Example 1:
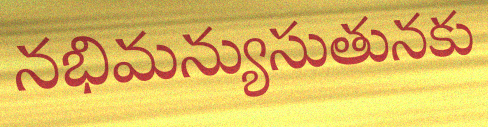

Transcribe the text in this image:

నభిమన్యుసుతునకు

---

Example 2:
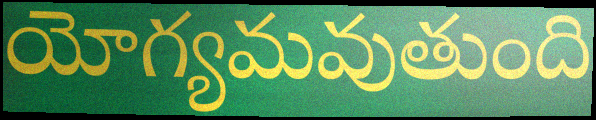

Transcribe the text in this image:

యోగ్యమవుతుంది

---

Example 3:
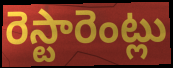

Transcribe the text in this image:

రెస్టారెంట్లు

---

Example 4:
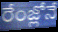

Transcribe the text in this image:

రేంజ్లోనే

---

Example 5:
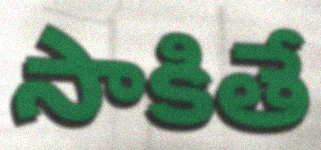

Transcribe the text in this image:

సాకితే